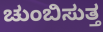
ಚುಂಬಿಸುತ್ತ